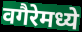
वगैरेमध्ये